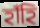
হাঁহি